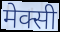
मेक्सी